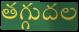
తగ్గుదల